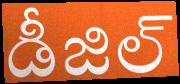
డీజిల్